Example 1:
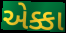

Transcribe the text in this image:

એક્કા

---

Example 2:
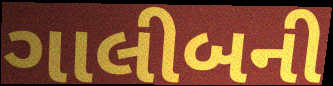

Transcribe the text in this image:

ગાલીબની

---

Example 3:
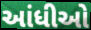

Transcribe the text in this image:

આંધીઓ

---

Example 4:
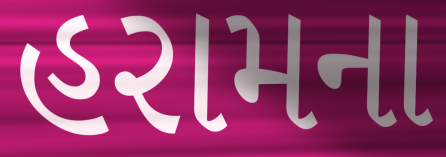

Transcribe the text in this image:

હરામના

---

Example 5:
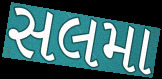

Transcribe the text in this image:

સલમા